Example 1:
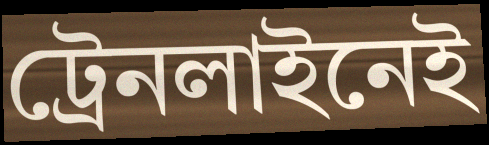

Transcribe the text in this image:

ট্রেনলাইনেই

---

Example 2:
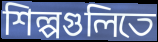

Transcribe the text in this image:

শিল্পগুলিতে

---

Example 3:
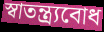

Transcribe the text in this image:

স্বাতন্ত্র্যবোধ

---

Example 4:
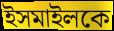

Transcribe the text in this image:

ইসমাইলকে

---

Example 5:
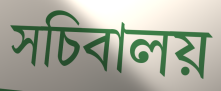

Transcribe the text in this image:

সচিবালয়